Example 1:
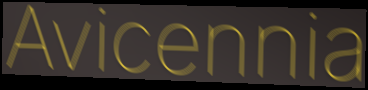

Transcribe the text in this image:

Avicennia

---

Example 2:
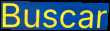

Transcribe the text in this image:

Buscar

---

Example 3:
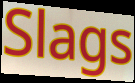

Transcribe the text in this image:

Slags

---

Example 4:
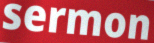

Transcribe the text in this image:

sermon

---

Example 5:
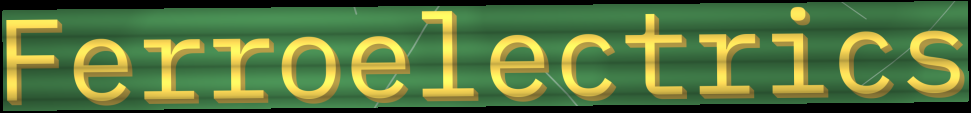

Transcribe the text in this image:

Ferroelectrics